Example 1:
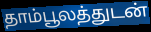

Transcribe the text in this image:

தாம்பூலத்துடன்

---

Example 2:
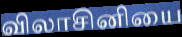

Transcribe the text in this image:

விலாசினியை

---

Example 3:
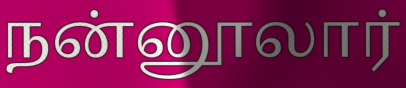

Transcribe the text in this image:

நன்னூலார்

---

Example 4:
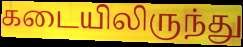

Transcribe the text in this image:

கடையிலிருந்து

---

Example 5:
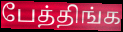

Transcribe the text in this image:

பேத்திங்க